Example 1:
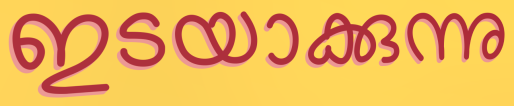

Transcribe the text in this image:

ഇടയാക്കുന്നു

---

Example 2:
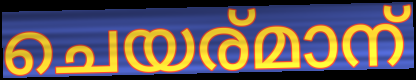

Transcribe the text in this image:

ചെയര്മാന്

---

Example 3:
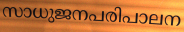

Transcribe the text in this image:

സാധുജനപരിപാലന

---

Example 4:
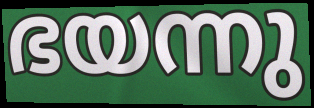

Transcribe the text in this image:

ഭയന്നു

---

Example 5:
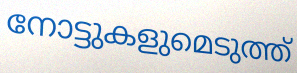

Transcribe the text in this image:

നോട്ടുകളുമെടുത്ത്